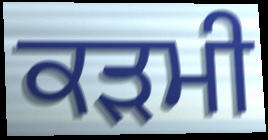
ਕੜਮੀ